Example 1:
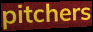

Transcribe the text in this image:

pitchers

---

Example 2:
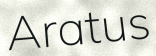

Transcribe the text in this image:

Aratus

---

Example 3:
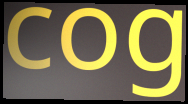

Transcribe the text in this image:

cog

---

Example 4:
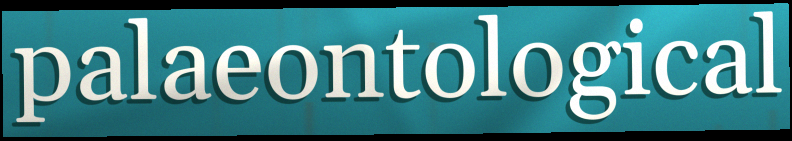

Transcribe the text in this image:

palaeontological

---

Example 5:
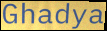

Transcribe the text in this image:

Ghadya